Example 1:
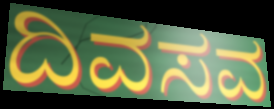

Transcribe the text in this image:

ದಿವಸವ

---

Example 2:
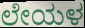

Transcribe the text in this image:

ಲೇಯಳ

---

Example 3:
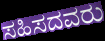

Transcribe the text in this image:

ಸಹಿಸದವರು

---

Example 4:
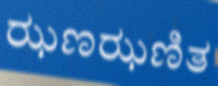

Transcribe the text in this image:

ಝಣಝಣಿತ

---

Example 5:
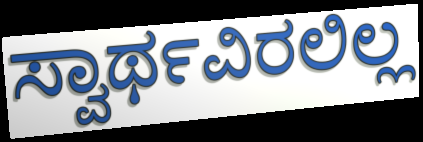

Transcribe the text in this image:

ಸ್ವಾರ್ಥವಿರಲಿಲ್ಲ